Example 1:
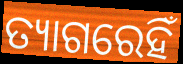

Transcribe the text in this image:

ତ୍ୟାଗରେହିଁ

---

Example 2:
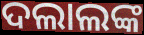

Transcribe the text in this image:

ଦଲାଲଙ୍କ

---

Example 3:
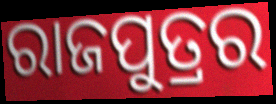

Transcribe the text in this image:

ରାଜପୁତ୍ରର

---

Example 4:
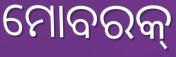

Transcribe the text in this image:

ମୋବରକ୍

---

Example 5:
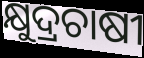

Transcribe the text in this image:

କ୍ଷୁଦ୍ରଚାଷୀ